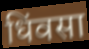
धिंवसा